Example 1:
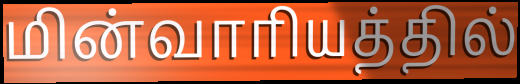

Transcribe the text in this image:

மின்வாரியத்தில்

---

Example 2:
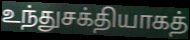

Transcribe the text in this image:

உந்துசக்தியாகத்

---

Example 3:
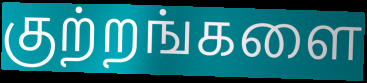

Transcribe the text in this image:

குற்றங்களை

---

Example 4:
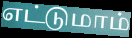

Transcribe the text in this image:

எட்டுமாம்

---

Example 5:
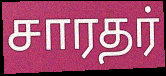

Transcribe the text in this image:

சாரதர்